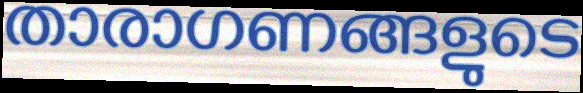
താരാഗണങ്ങളുടെ